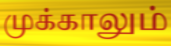
முக்காலும்